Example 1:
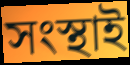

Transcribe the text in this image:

সংস্থাই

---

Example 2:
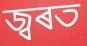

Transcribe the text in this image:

জ্বৰত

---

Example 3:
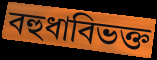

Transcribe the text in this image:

বহুধাবিভক্ত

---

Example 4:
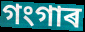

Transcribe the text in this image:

গংগাৰ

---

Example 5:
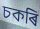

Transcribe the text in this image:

চকৰি